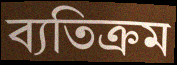
ব্যতিক্রম